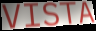
VISTA